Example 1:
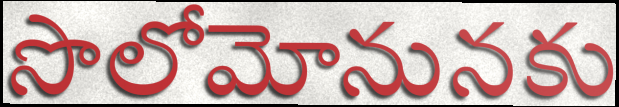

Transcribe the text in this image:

సొలోమోనునకు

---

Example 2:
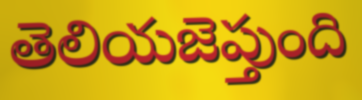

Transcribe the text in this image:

తెలియజెప్తుంది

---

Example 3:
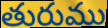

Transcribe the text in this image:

తురుము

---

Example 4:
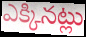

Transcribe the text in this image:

ఎక్కినట్లు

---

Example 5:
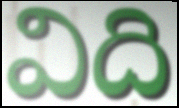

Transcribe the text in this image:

విది